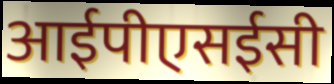
आईपीएसईसी